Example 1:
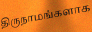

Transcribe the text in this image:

திருநாமங்களாக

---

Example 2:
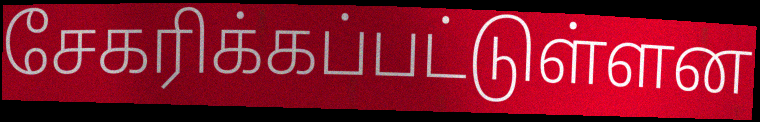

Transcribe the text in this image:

சேகரிக்கப்பட்டுள்ளன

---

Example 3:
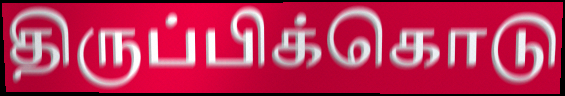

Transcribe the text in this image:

திருப்பிக்கொடு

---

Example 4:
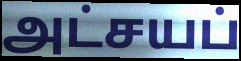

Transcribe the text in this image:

அட்சயப்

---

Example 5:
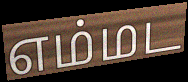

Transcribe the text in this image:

எம்மட